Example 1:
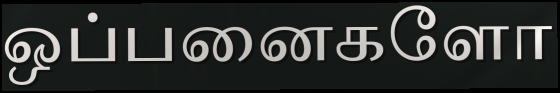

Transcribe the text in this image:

ஒப்பனைகளோ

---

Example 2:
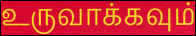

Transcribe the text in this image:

உருவாக்கவும்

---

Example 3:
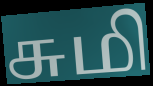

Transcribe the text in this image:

சுமி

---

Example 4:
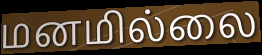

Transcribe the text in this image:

மனமில்லை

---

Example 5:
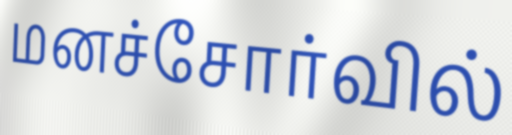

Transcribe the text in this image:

மனச்சோர்வில்